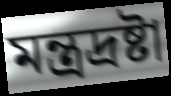
মন্ত্রদ্রষ্টা